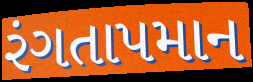
રંગતાપમાન